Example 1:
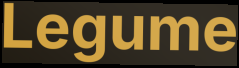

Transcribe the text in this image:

Legume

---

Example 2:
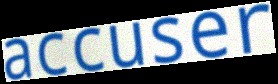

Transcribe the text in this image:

accuser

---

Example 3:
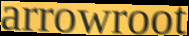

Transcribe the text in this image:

arrowroot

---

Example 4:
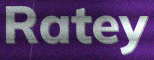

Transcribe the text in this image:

Ratey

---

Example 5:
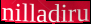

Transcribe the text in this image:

nilladiru